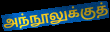
அந்நூலுக்குத்